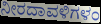
ನೀರದಾವಳಿಗಳಂ